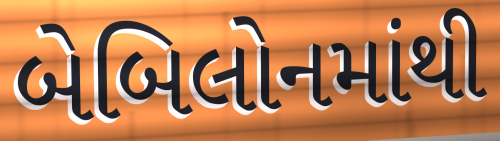
બેબિલોનમાંથી